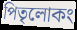
পিতৃলোকং